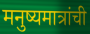
मनुष्यमात्रांची